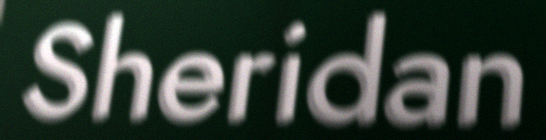
Sheridan